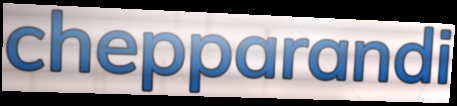
chepparandi